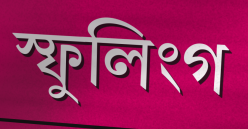
স্ফুলিংগ